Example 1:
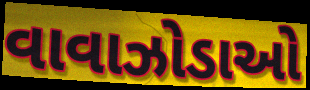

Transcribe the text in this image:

વાવાઝોડાઓ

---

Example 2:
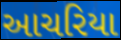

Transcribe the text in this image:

આચરિયા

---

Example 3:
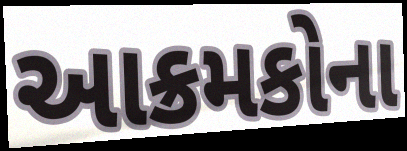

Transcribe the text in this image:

આક્રમકોના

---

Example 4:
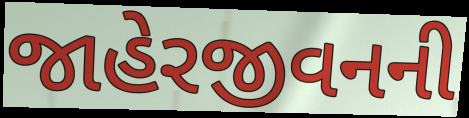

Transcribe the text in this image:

જાહેરજીવનની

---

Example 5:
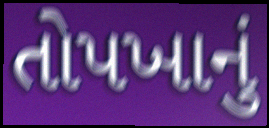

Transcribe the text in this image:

તોપખાનું